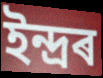
ইন্দ্ৰৰ